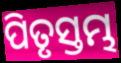
ପିତୃସ୍ତମ୍ଭ